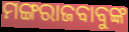
ମଙ୍ଗରାଜବାବୁଙ୍କ